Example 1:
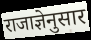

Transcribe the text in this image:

राजाज्ञेनुसार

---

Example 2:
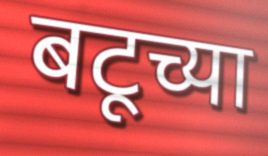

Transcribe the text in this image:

बटूच्या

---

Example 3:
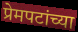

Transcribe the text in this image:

प्रेमपटांच्या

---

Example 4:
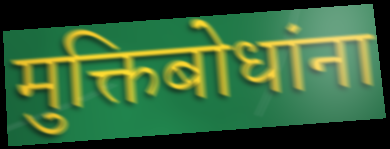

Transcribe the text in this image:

मुक्तिबोधांना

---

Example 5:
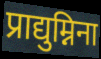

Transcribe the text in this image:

प्राद्युम्निना